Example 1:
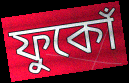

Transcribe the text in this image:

ফুকোঁ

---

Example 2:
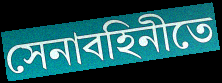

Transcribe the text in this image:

সেনাবহিনীতে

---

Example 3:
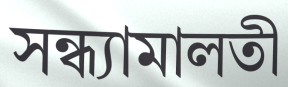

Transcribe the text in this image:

সন্ধ্যামালতী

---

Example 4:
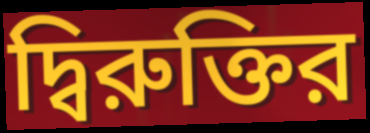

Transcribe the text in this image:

দ্বিরুক্তির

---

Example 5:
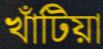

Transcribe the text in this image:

খাঁটিয়া